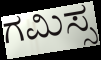
ಗಮಿಸ್ಸ